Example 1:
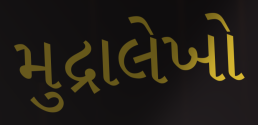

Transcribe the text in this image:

મુદ્રાલેખો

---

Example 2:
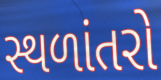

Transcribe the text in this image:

સ્થળાંતરો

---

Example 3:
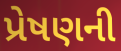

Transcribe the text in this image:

પ્રેષણની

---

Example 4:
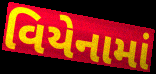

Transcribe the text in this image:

વિયેનામાં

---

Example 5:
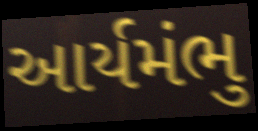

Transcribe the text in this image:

આર્યમંભુ